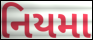
નિયમા